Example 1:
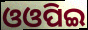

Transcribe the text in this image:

ଓଓପିଇ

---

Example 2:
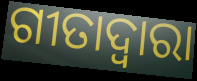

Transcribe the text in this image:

ଗୀତାଦ୍ଵାରା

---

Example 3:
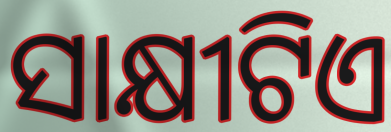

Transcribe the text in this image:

ସାକ୍ଷୀଟିଏ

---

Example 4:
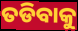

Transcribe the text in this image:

ତଡିବାକୁ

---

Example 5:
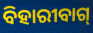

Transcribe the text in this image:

ବିହାରୀବାଗ୍